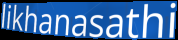
likhanasathi